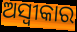
ଅସ୍ୱୀକାର